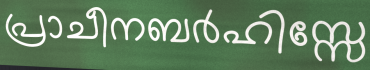
പ്രാചീനബർഹിസ്സേ